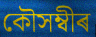
কৌসম্বীৰ